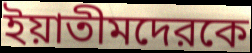
ইয়াতীমদেরকে